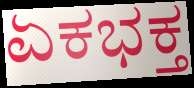
ಏಕಭಕ್ತ